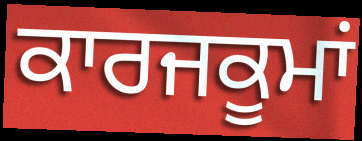
ਕਾਰਜਕੂਮਾਂ